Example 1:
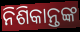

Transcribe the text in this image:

ନିଶିକାନ୍ତଙ୍କ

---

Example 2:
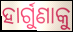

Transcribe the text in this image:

ହାର୍ଗୁଣାକୁ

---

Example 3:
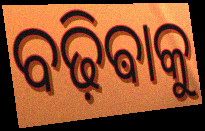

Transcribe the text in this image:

ବଢ଼ିଵାକୁ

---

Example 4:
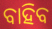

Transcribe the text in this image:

ବାହିବ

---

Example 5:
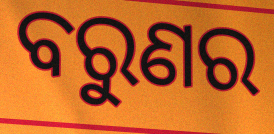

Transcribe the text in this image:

ବରୁଣର